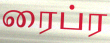
ரைப்ர